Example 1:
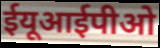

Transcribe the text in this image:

ईयूआईपीओ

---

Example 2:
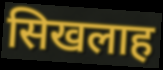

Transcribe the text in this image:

सिखलाह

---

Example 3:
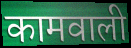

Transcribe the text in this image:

कामवाली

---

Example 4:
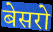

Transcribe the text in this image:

बेसरो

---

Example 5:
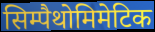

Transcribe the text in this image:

सिम्पैथोमिमेटिक